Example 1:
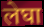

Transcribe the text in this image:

लेघा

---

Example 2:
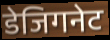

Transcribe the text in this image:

डेजिगनेट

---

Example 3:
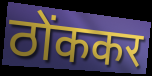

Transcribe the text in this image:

ठोंककर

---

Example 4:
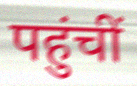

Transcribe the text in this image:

पहुंचीं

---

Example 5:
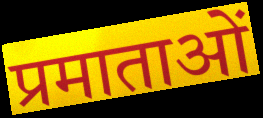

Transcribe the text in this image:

प्रमाताओं